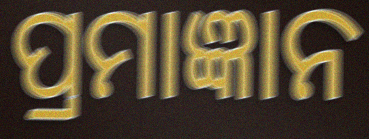
ପ୍ରମାଜ୍ଞାନ